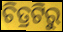
ଚିତ୍ରଟିରୁ